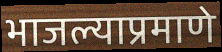
भाजल्याप्रमाणे